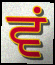
ਵਂ